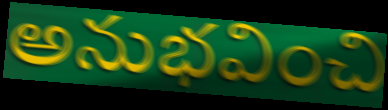
అనుభవించి